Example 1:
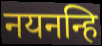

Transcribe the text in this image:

नयनन्हि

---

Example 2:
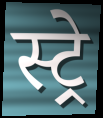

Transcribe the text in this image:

स्ट्रे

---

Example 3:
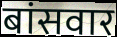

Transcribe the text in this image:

बांसवार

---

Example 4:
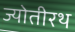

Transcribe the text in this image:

ज्योतीरथ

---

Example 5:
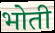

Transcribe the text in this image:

भोती